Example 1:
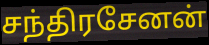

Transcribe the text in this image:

சந்திரசேனன்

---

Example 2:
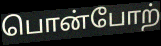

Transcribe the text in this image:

பொன்போற்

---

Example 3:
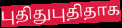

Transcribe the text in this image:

புதிதுபுதிதாக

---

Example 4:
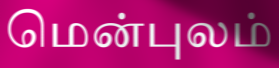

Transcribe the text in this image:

மென்புலம்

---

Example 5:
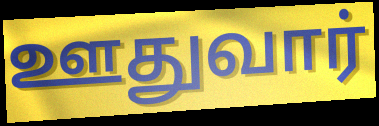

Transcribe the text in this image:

ஊதுவார்